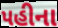
પહીના